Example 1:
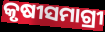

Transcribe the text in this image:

କୃଷୀସମାଗ୍ରୀ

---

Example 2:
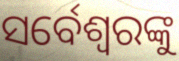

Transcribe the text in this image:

ସର୍ବେଶ୍ୱରଙ୍କୁ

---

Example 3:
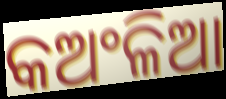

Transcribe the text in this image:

କଅଂଳିଆ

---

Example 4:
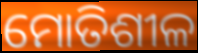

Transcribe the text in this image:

ମୋତିଶୀଳ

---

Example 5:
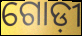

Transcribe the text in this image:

ଗୋଡ଼ୀ